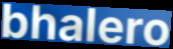
bhalero